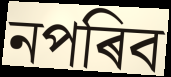
নপৰিব